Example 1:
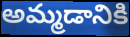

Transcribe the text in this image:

అమ్మడానికి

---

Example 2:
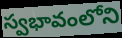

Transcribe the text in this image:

స్వభావంలోని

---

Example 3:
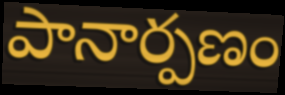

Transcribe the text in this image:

పానార్పణం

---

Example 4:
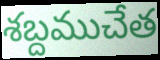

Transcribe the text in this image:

శబ్దముచేత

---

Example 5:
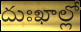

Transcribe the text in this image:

దుఃఖాల్లో